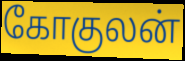
கோகுலன்